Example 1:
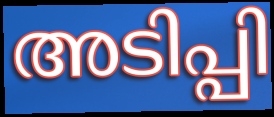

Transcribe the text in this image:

അടിപ്പി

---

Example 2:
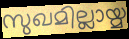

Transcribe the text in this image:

സുഖമില്ലായ്മ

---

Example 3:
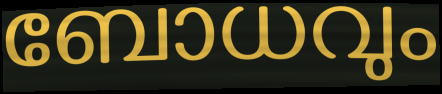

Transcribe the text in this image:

ബോധവും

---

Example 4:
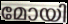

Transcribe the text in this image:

മോയി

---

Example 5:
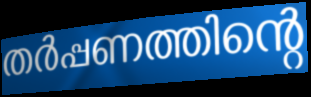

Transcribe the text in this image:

തർപ്പണത്തിന്റെ